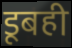
डूबही